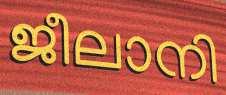
ജീലാനി